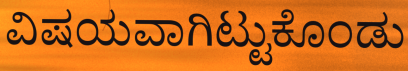
ವಿಷಯವಾಗಿಟ್ಟುಕೊಂಡು